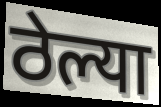
ठेल्या